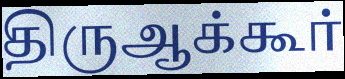
திருஆக்கூர்